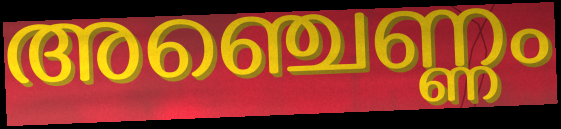
അഞ്ചെണ്ണം